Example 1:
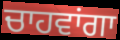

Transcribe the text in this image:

ਚਾਹਵਾਂਗਾ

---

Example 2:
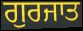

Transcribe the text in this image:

ਗੁਰਜਾਤ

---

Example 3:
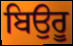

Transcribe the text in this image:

ਬਿਉਰੂ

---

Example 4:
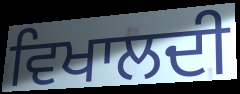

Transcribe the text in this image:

ਵਿਖਾਲਦੀ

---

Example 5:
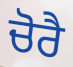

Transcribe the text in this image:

ਚੋਰੈ